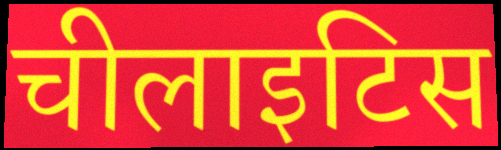
चीलाइटिस